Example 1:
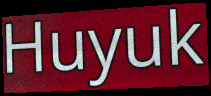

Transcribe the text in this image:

Huyuk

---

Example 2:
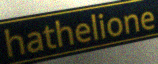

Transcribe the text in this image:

hathelione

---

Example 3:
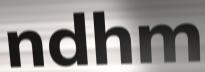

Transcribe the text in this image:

ndhm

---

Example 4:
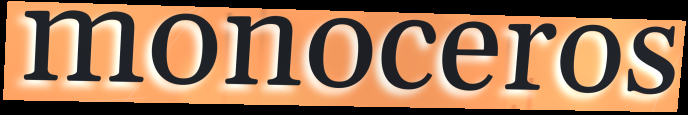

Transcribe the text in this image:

monoceros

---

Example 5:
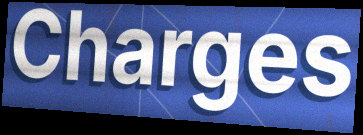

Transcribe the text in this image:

Charges